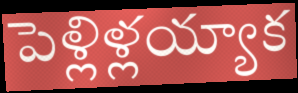
పెళ్లిళ్లయ్యాక